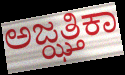
ಅಜ್ಝತ್ತಿಕಾ